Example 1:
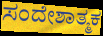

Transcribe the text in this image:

ಸಂದೇಶಾತ್ಮಕ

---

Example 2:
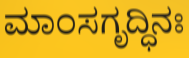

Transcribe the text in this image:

ಮಾಂಸಗೃದ್ಧಿನಃ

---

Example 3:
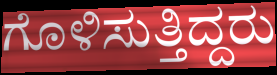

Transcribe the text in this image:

ಗೊಳಿಸುತ್ತಿದ್ದರು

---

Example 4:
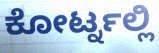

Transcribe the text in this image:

ಕೋರ್ಟ್ನಲ್ಲಿ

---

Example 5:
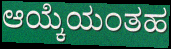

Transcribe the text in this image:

ಆಯ್ಕೆಯಂತಹ